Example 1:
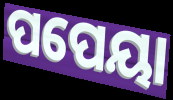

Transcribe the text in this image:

ପପେୟା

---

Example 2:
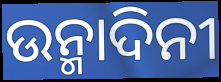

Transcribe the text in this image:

ଉନ୍ମାଦିନୀ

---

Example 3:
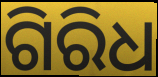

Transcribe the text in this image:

ଗିରିଧ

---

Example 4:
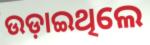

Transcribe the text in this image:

ଉଡ଼ାଇଥିଲେ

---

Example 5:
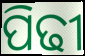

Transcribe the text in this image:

ପିଢୀ